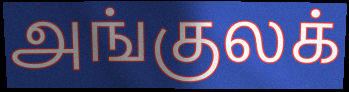
அங்குலக்